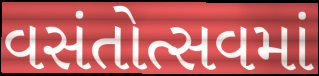
વસંતોત્સવમાં